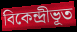
বিকেন্দ্রীভূত